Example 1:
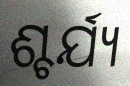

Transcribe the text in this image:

ଶ୍ଚର୍ଯ୍ୟ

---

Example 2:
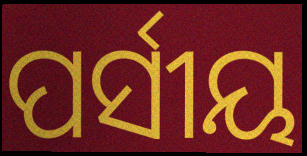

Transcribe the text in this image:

ପର୍ସୀୟ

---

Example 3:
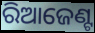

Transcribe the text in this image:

ରିଆଜେଣ୍ଟ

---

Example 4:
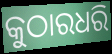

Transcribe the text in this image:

କୁଠାରଧରି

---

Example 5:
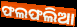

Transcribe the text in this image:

ଫଲଫଲିଆ